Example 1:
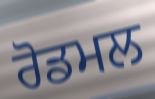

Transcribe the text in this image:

ਰੋਡਮਲ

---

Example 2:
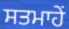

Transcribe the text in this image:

ਸਤਮਾਹੇਂ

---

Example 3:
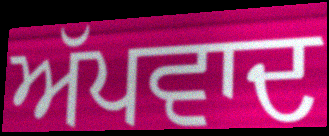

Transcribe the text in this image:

ਅੱਪਵਾਦ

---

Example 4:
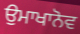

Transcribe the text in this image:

ਉਮਾਖਾਨੋਵ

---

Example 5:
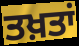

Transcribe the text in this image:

ਤਖ਼ਤਾਂ